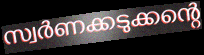
സ്വർണക്കടുക്കന്റെ